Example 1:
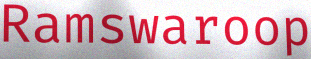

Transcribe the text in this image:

Ramswaroop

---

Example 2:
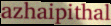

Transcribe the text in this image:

azhaipithal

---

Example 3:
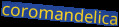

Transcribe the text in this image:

coromandelica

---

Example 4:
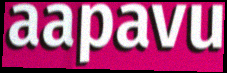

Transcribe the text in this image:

aapavu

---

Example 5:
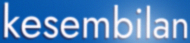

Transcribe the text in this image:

kesembilan